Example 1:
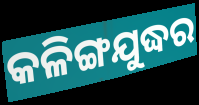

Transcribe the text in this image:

କଳିଙ୍ଗଯୁଦ୍ଧର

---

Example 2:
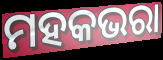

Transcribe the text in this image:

ମହକଭରା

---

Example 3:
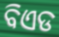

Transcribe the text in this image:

ବିଏଡ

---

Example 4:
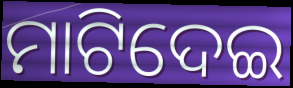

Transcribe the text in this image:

ମାଟିଦେଇ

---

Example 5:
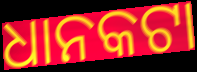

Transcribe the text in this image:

ଧାନକଟା